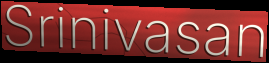
Srinivasan